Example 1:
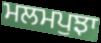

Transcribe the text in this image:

ਮਲਮਪੁਝਾ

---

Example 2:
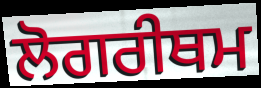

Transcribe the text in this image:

ਲੋਗਰੀਥਮ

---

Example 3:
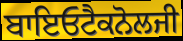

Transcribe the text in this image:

ਬਾਇਓਟੈਕਨੋਲਜੀ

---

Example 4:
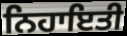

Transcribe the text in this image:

ਨਿਹਾਇਤੀ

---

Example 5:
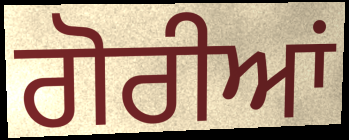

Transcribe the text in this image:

ਗੋਰੀਆਂ